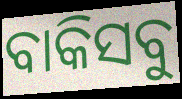
ବାକିସବୁ